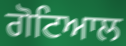
ਗੋਟਿਆਲ